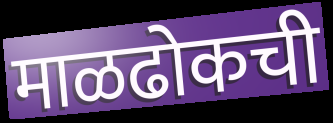
माळढोकची